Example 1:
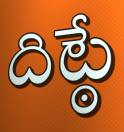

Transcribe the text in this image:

దిట్ఠే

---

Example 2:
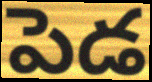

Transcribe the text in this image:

పెడ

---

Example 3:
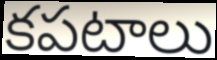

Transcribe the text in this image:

కపటాలు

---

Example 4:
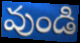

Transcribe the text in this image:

వుండి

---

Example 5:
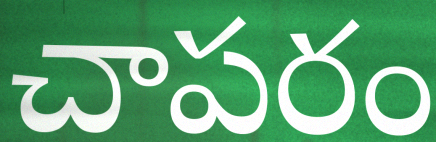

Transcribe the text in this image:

చాపరం